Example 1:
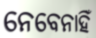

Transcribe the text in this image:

ନେବେନାହିଁ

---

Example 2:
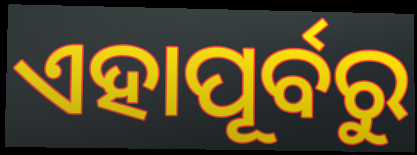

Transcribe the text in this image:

ଏହାପୂର୍ବରୁ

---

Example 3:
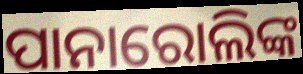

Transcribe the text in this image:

ପାନାରୋଲିଙ୍କ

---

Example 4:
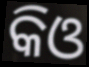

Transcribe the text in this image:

କିଓ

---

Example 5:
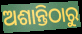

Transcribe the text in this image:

ଅଶାନ୍ତିଠାରୁ